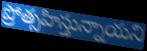
ప్రోత్సహిస్తున్నాయని